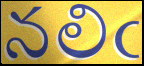
నలిఁ